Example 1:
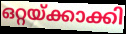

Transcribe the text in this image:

ഒറ്റയ്ക്കാക്കി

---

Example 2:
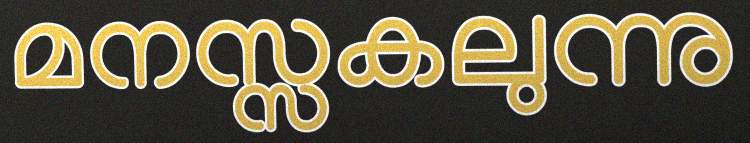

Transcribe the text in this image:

മനസ്സകലുന്നു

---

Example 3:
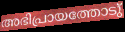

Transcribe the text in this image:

അഭിപ്രായത്തോടു്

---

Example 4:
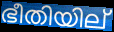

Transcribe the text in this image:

ഭീതിയില്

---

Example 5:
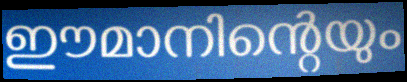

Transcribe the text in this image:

ഈമാനിന്റെയും